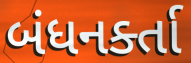
બંધનર્ક્તા